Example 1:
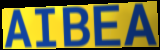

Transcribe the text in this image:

AIBEA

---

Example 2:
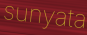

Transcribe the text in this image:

sunyata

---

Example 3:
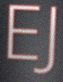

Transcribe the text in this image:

EJ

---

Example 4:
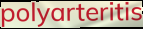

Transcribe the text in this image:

polyarteritis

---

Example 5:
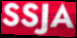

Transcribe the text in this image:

SSJA